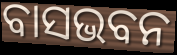
ବାସଭବନ